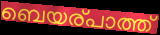
ബെയര്പാത്ത്